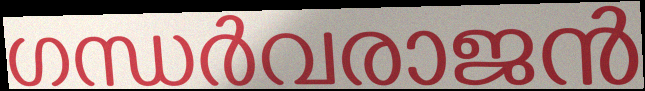
ഗന്ധർവരാജൻ